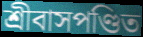
শ্রীবাসপণ্ডিত